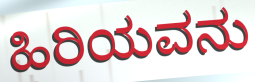
ಹಿರಿಯವನು